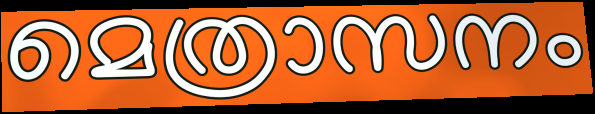
മെത്രാസനം